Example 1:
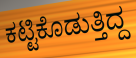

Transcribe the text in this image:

ಕಟ್ಟಿಕೊಡುತ್ತಿದ್ದ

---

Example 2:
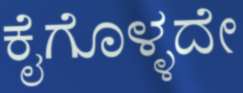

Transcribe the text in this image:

ಕೈಗೊಳ್ಳದೇ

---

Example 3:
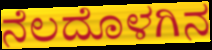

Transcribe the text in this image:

ನೆಲದೊಳಗಿನ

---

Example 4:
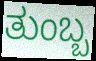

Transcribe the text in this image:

ತುಂಬ್ಬ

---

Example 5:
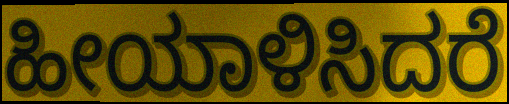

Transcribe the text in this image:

ಹೀಯಾಳಿಸಿದರೆ